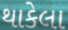
થાકેલા